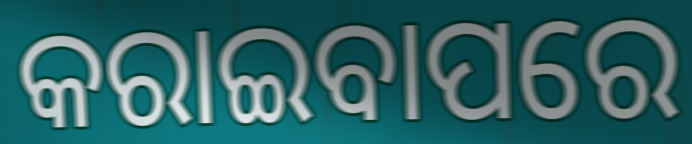
କରାଇବାପରେ